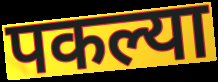
पकल्या